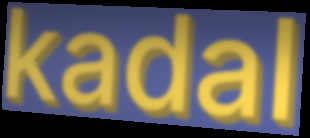
kadal